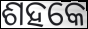
ଶହକେ